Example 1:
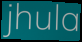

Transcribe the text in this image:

jhula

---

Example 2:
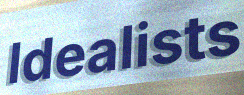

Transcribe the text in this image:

Idealists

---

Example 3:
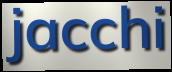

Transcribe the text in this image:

jacchi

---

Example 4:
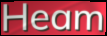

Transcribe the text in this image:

Heam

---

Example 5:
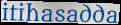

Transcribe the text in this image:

itihasadda